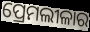
ପ୍ରେମଲୀଳାର